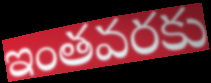
ఇంతవరకు